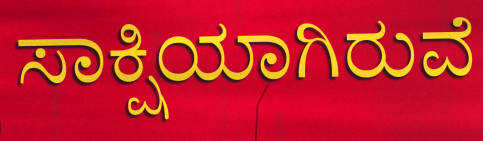
ಸಾಕ್ಷಿಯಾಗಿರುವೆ